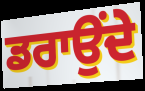
ਡਰਾਉਂਦੇ